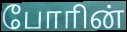
போரின்